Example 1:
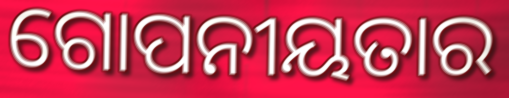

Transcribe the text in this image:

ଗୋପନୀୟତାର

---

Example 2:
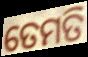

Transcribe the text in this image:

ତେମତି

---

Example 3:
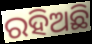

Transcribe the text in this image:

ରହିଅଛି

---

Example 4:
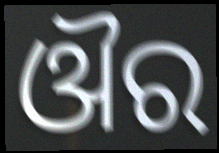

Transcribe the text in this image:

ଔର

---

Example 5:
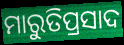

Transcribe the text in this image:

ମାରୁତିପ୍ରସାଦ